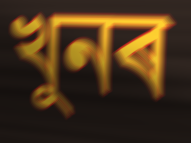
খুনৰ